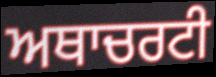
ਅਥਾਚਰਟੀ